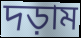
দড়াম